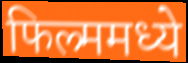
फिल्ममध्ये